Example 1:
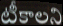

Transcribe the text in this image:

టీకాలని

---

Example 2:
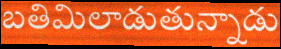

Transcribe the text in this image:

బతిమిలాడుతున్నాడు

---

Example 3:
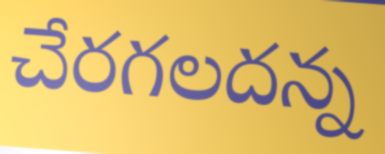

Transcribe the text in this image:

చేరగలదన్న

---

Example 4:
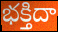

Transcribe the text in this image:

భక్తిదా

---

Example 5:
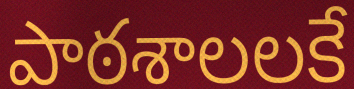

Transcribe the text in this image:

పాఠశాలలకే